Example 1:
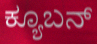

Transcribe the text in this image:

ಕ್ಯೂಬನ್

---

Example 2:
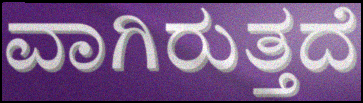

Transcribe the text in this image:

ವಾಗಿರುತ್ತದೆ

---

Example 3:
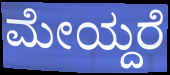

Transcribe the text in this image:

ಮೇಯ್ದರೆ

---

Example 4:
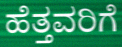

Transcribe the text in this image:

ಹೆತ್ತವರಿಗೆ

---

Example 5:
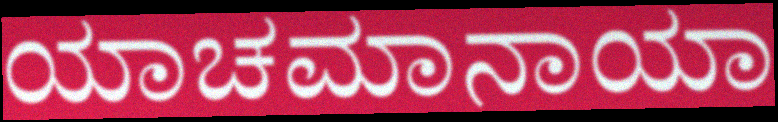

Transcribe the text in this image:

ಯಾಚಮಾನಾಯಾ